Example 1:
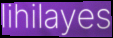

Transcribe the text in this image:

lihilayes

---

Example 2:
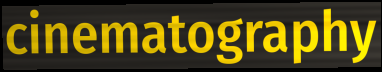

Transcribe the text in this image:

cinematography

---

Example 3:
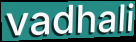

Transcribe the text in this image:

vadhali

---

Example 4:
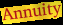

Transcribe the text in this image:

Annuity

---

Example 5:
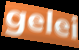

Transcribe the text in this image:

gelei